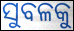
ସୁବଳକୁ